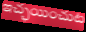
ఇచ్ఛయించుట